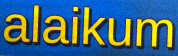
alaikum